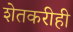
शेतकरीही